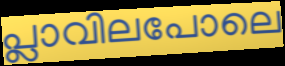
പ്ലാവിലപോലെ